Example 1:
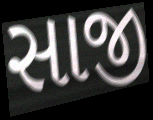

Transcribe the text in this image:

સાજી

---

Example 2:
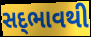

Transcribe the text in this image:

સદ્‍ભાવથી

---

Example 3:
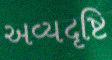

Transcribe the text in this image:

અવ્યદૃષ્ટિ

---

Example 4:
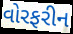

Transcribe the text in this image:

વોરફરીન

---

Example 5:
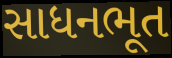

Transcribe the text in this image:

સાધનભૂત